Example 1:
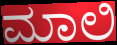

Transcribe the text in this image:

ಮಾಲಿ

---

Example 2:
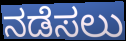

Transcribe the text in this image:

ನಡೆಸಲು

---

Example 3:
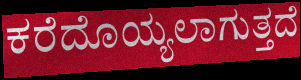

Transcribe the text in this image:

ಕರೆದೊಯ್ಯಲಾಗುತ್ತದೆ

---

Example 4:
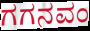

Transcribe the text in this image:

ಗಗನವಂ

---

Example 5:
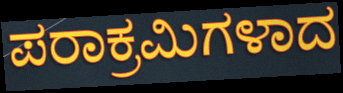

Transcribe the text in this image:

ಪರಾಕ್ರಮಿಗಳಾದ